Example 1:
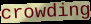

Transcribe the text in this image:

crowding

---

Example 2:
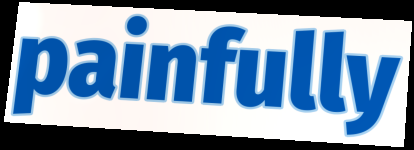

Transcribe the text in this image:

painfully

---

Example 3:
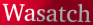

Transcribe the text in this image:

Wasatch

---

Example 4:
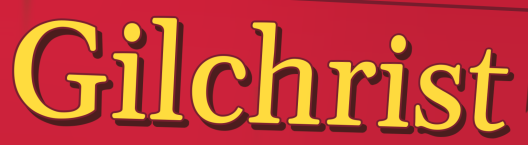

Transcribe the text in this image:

Gilchrist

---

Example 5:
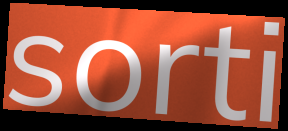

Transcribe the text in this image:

sorti